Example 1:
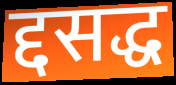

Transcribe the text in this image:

द्दसद्ध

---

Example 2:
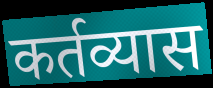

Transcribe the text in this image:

कर्तव्यास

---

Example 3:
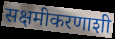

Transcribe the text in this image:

सक्षमीकरणाशी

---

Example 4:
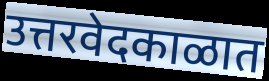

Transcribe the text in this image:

उत्तरवेदकाळात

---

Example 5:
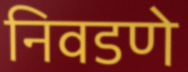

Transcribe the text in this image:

निवडणे